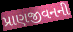
પ્રાણજીવનની